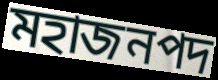
মহাজনপদ